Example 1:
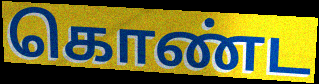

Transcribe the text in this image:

கொண்ட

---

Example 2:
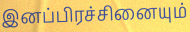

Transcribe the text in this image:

இனப்பிரச்சினையும்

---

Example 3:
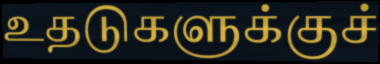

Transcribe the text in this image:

உதடுகளுக்குச்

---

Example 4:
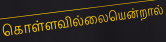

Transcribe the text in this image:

கொள்ளவில்லையென்றால்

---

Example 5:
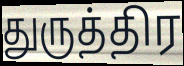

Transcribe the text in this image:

துருத்திர